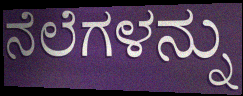
ನೆಲೆಗಳನ್ನು